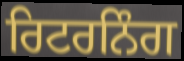
ਰਿਟਰਨਿੰਗ